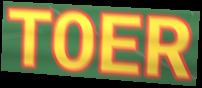
TOER